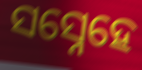
ସସ୍ନେହେ